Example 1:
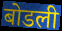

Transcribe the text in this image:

बोडली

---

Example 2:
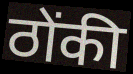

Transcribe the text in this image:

ठोंकी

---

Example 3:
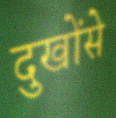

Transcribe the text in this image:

दुखोंसे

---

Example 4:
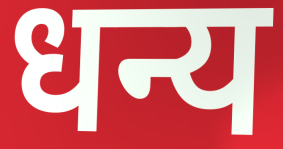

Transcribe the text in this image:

धन्य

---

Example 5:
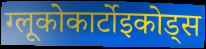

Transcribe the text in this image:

ग्लूकोकार्टोइकोड्स